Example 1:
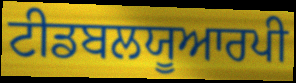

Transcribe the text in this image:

ਟੀਡਬਲਯੂਆਰਪੀ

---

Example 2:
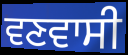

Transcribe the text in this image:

ਵਣਵਾਸੀ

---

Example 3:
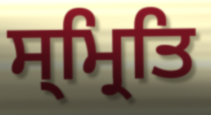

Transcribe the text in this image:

ਸ੍ਮ੍ਰਿਤਿ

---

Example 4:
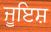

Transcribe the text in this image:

ਜੂਇਸ਼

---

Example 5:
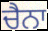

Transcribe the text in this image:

ਚੈਨਾ